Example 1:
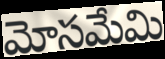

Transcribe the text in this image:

మోసమేమి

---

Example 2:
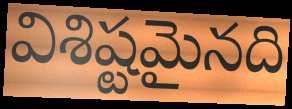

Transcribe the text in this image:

విశిష్టమైనది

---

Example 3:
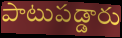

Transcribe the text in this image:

పాటుపడ్డారు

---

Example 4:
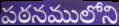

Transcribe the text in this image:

పఠనములోని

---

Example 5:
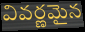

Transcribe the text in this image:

వివర్ణమైన